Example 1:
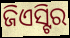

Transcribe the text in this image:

ଜିଏସ୍ଟିର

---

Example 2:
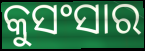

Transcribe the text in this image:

କୁସଂସାର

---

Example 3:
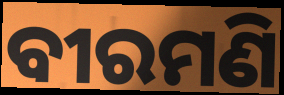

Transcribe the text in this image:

ବୀରମଣି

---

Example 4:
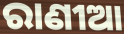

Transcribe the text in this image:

ରାଣୀଆ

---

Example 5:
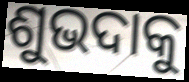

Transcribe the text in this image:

ଶୁଭଦାକୁ